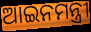
ଆଇନମନ୍ତ୍ରୀ